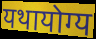
यथायोग्य